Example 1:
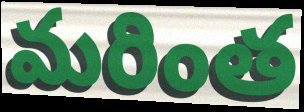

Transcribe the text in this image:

మరింత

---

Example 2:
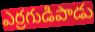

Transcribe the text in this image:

ఎర్రగుడిపాడు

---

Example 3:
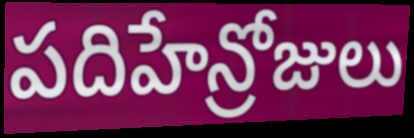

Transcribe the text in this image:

పదిహేన్రోజులు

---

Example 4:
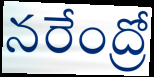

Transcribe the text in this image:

నరేంద్రో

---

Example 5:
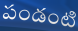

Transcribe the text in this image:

పండంటి